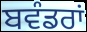
ਬਵੰਡਰਾਂ